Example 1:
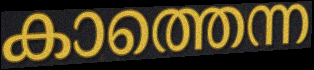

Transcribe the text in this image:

കാത്തെന്ന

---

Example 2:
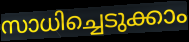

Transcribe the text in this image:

സാധിച്ചെടുക്കാം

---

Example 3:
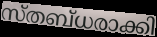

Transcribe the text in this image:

സ്തബ്ധരാക്കി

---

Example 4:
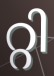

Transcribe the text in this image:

റ്റി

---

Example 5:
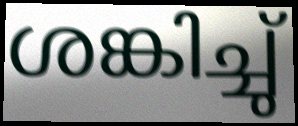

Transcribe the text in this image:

ശങ്കിച്ചു്